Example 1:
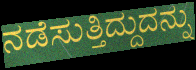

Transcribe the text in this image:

ನಡೆಸುತ್ತಿದ್ದುದನ್ನು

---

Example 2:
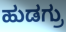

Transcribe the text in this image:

ಹುಡಗ್ರು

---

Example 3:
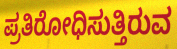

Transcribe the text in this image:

ಪ್ರತಿರೋಧಿಸುತ್ತಿರುವ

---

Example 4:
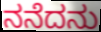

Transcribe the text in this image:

ನನೆದನು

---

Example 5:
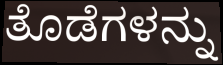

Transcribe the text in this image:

ತೊಡೆಗಳನ್ನು